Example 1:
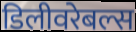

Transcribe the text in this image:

डिलीवरेबल्स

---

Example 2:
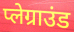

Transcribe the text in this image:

प्लेग्राउंड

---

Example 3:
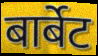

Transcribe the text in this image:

बार्बेट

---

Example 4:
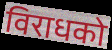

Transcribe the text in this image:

विराधको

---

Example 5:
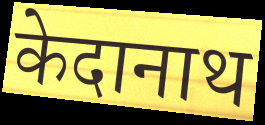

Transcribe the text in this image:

केदानाथ